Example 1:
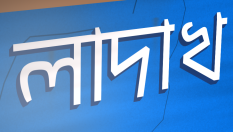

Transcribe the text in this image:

লাদাখ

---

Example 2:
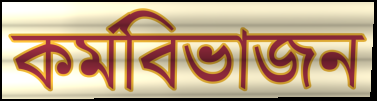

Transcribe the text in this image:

কর্মবিভাজন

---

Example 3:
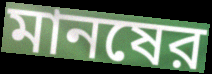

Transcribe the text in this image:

মানষের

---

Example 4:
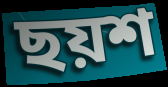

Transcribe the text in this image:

ছয়শ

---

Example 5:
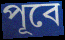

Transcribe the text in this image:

পূবে